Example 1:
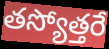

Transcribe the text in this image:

తస్యోత్తరే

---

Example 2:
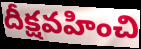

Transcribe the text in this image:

దీక్షవహించి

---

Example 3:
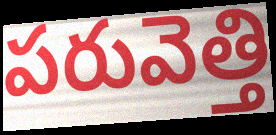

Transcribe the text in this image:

పరువెత్తి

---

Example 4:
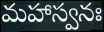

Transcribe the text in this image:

మహాస్వనః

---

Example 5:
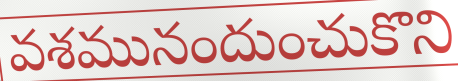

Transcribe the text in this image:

వశమునందుంచుకొని